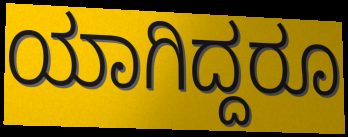
ಯಾಗಿದ್ದರೂ